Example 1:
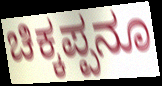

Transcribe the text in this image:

ಚಿಕ್ಕಪ್ಪನೂ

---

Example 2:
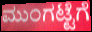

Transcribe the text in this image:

ಮುಂಗಟ್ಟೆಗೆ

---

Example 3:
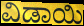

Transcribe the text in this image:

ವಿಡಾಯಿ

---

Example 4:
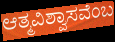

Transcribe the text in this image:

ಆತ್ಮವಿಶ್ವಾಸವೆಂಬ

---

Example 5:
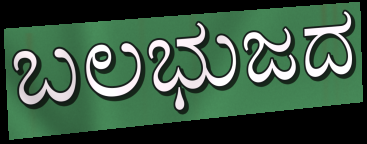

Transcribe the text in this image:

ಬಲಭುಜದ